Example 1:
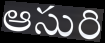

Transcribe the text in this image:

ఆసురి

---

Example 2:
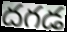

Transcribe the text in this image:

దగడ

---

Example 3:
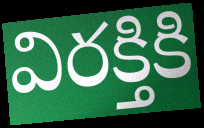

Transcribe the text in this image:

విరక్తికి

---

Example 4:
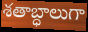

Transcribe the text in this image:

శతాబ్ధాలుగా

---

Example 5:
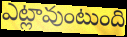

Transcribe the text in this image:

ఎట్లావుంటుంది